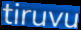
tiruvu